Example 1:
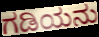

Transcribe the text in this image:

ಗಡಿಯನು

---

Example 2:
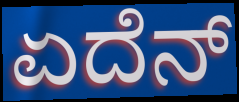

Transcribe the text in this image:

ಏದೆನ್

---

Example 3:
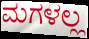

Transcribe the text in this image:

ಮಗಳಲ್ಲ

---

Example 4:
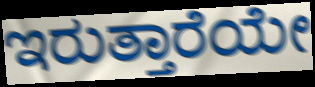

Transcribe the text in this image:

ಇರುತ್ತಾರೆಯೇ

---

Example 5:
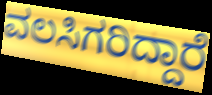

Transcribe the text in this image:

ವಲಸಿಗರಿದ್ದಾರೆ